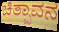
ಚಿತ್ಪಾವನ